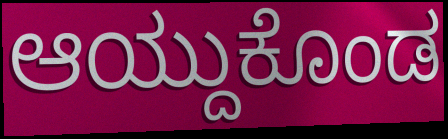
ಆಯ್ದುಕೊಂಡ